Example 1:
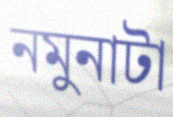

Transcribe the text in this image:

নমুনাটা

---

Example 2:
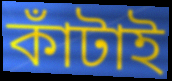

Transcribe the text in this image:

কাঁটাই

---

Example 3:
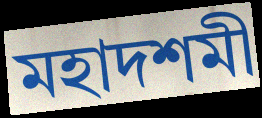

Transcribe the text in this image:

মহাদশমী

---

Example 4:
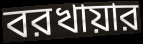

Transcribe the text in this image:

বরখায়ার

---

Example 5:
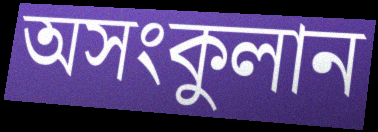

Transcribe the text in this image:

অসংকুলান